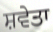
ਸ਼ਵੇਤਾ